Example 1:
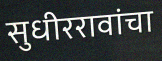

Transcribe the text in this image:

सुधीररावांचा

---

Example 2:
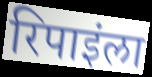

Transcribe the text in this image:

रिपाइंला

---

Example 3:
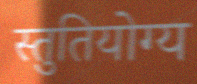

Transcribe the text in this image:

स्तुतियोग्य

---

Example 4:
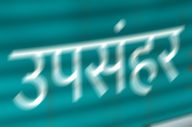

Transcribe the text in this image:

उपसंहर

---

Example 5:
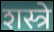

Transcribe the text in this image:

शस्त्रे